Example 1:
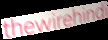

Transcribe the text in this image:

thewirehindi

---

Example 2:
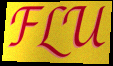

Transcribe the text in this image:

FLU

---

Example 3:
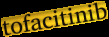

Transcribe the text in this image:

tofacitinib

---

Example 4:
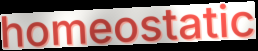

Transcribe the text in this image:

homeostatic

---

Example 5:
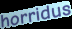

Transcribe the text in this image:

horridus